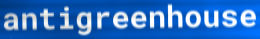
antigreenhouse